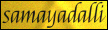
samayadalli